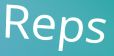
Reps